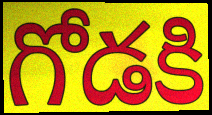
గోడకి